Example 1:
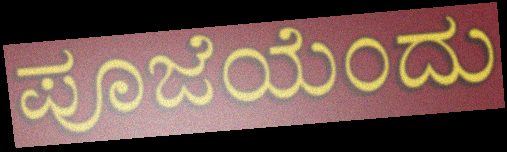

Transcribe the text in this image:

ಪೂಜೆಯೆಂದು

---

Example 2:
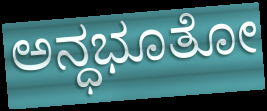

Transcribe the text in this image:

ಅನ್ಧಭೂತೋ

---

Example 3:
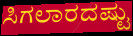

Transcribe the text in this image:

ಸಿಗಲಾರದಷ್ಟು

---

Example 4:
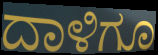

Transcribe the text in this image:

ದಾಳಿಗೂ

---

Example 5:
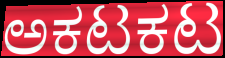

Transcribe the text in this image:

ಅಕಟಕಟ